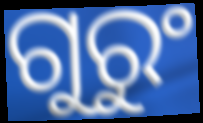
ଗୁରୁଂ